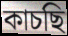
কাচছি